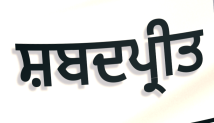
ਸ਼ਬਦਪ੍ਰੀਤ